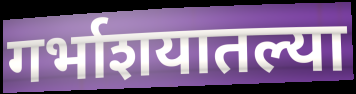
गर्भाशयातल्या